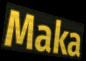
Maka